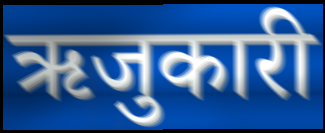
ऋजुकारी